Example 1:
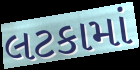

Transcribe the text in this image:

લટકામાં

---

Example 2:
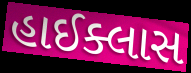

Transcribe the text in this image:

હાઈક્લાસ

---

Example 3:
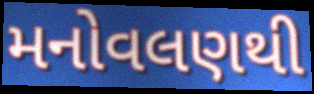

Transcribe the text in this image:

મનોવલણથી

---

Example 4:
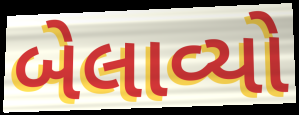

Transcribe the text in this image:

બેલાવ્યો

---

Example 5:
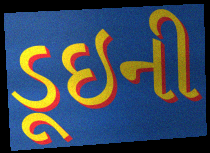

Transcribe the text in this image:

ડૂઇની